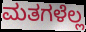
ಮತಗಳೆಲ್ಲ